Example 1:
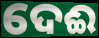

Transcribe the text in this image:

ଦେଈ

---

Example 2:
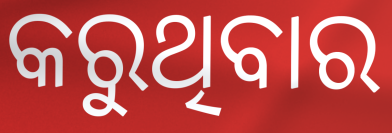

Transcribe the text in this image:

କରୁଥିବାର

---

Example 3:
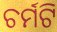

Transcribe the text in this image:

ଚର୍ମଟି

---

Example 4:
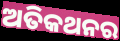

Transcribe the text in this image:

ଅତିକଥନର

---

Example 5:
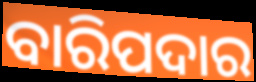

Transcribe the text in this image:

ବାରିପଦାର